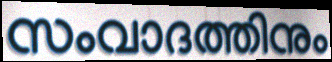
സംവാദത്തിനും